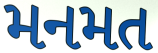
મનમત